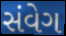
સંવેગ